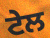
ਟੇਲ